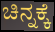
ಚಿನ್ನಕ್ಕೆ